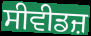
ਸੀਵੀਡਜ਼